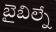
బైబిల్నే